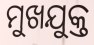
ମୁଖଯୁକ୍ତ